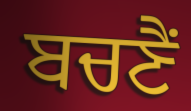
ਬਚਣੈਂ